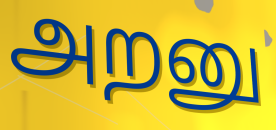
அறனு